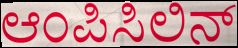
ಆಂಪಿಸಿಲಿನ್